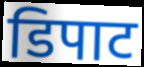
डिपाट